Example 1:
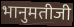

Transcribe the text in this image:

भानुमतीजी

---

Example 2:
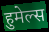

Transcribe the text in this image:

हुमेल्स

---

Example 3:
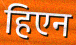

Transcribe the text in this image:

हिएन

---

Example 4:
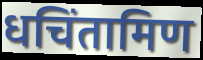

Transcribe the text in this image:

धचिंतामिण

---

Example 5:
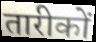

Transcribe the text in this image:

तारीकों